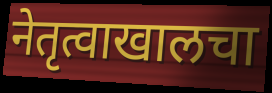
नेतृत्वाखालचा